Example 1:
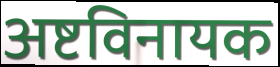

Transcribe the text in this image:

अष्टविनायक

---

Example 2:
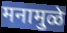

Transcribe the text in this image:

मनामुळे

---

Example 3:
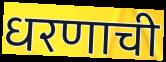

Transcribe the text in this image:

धरणाची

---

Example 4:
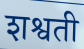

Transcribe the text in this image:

शश्वती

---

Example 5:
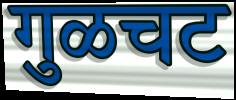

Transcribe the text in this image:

गुळचट